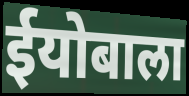
ईयोबाला